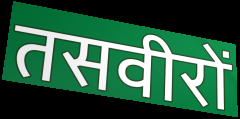
तसवीरों